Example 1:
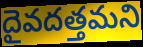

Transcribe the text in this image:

దైవదత్తమని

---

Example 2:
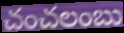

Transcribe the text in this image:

చంచలంబు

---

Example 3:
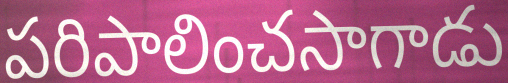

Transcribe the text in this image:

పరిపాలించసాగాడు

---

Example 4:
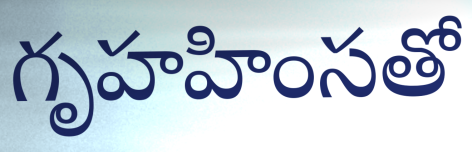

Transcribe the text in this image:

గృహహింసతో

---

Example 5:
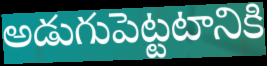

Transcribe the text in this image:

అడుగుపెట్టటానికి